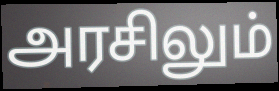
அரசிலும்